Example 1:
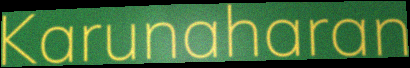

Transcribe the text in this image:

Karunaharan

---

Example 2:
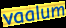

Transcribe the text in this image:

vaalum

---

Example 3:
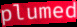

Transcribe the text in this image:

plumed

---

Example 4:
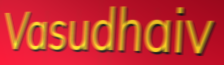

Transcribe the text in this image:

Vasudhaiv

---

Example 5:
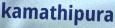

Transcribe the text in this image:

kamathipura